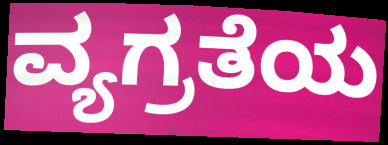
ವ್ಯಗ್ರತೆಯ